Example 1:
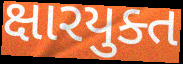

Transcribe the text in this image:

ક્ષારયુક્ત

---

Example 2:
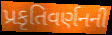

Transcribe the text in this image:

પ્રકૃતિવર્ણનની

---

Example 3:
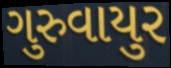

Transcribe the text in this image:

ગુરુવાયુર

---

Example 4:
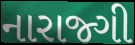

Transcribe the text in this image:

નારાજ્ગી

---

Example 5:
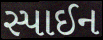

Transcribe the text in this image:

સ્પાઈન